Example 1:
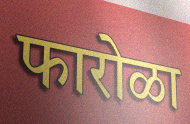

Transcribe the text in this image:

फारोळा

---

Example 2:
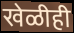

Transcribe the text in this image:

खेळीही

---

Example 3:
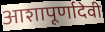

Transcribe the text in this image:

आशापूर्णादेवी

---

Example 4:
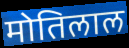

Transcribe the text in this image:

मोतिलाल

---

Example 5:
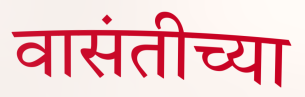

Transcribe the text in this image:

वासंतीच्या